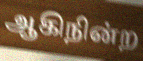
ஆகிநின்ற